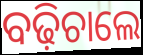
ବଢ଼ିଚାଲେ